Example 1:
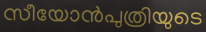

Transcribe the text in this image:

സീയോൻപുത്രിയുടെ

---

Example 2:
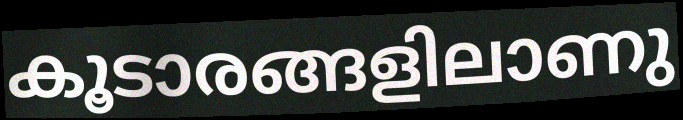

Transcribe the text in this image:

കൂടാരങ്ങളിലാണു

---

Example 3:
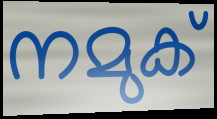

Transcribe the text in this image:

നമുക്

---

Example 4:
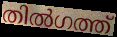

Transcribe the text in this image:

തിൽഗത്ത്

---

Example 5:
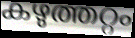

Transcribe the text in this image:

കഴുത്തറ്റം